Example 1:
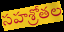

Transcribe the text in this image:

సహశ్రోతల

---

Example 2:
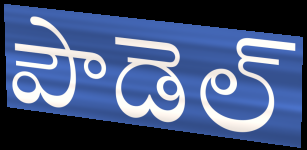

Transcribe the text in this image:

పౌడెల్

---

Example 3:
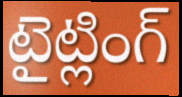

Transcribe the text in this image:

టైట్లింగ్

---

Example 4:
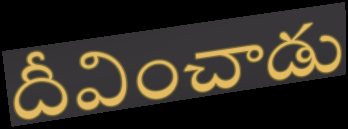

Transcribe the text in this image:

దీవించాడు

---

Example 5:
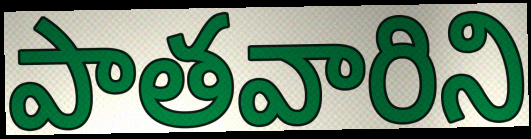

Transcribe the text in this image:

పాతవారిని